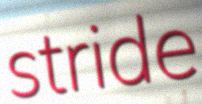
stride